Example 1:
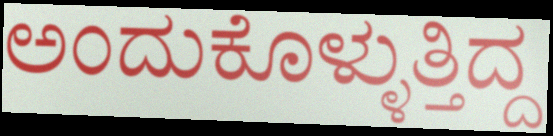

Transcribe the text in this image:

ಅಂದುಕೊಳ್ಳುತ್ತಿದ್ದ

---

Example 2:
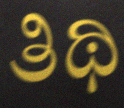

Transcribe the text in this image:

ತಿಥಿ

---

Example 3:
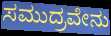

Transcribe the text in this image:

ಸಮುದ್ರವೇನು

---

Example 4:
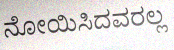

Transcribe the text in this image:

ನೋಯಿಸಿದವರಲ್ಲ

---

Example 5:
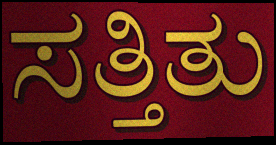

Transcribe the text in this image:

ಸತ್ತಿತು